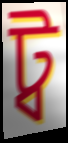
ট্ব